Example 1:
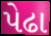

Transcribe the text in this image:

પેઢા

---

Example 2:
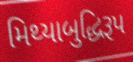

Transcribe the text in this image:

મિથ્યાબુદ્ધિરૂપ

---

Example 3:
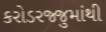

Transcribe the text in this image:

કરોડરજ્જુમાંથી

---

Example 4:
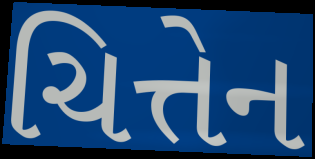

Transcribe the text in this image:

ચિત્તેન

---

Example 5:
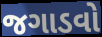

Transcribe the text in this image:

જગાડવો